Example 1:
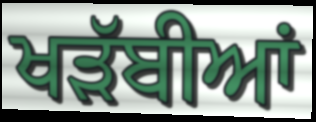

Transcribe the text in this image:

ਖੜੱਬੀਆਂ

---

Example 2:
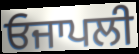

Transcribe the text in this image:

ਓਜਾਪਲੀ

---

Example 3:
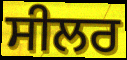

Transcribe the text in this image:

ਸੀਲਰ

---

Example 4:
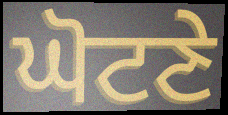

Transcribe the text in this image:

ਘੋਟਣੇ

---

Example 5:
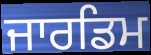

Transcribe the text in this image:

ਜਾਰਡਿਮ